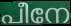
പീനേ